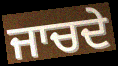
ਜਾਚਦੇ